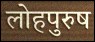
लोहपुरुष